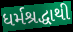
ધર્મશ્રદ્ધાથી